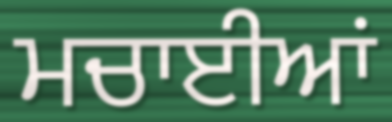
ਮਚਾਈਆਂ